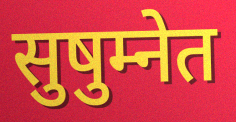
सुषुम्नेत